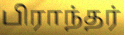
பிராந்தர்